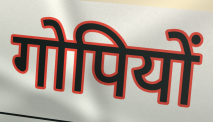
गोपियों